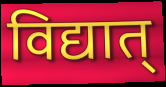
विद्यात्